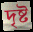
দৃষ্ট